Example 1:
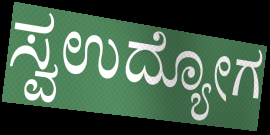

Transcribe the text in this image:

ಸ್ವಉದ್ಯೋಗ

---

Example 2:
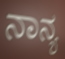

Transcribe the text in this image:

ನಾನ್ಯ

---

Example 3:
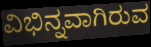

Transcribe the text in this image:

ವಿಭಿನ್ನವಾಗಿರುವ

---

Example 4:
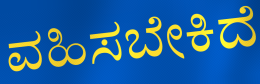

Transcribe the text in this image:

ವಹಿಸಬೇಕಿದೆ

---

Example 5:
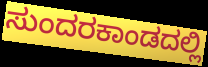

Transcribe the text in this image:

ಸುಂದರಕಾಂಡದಲ್ಲಿ